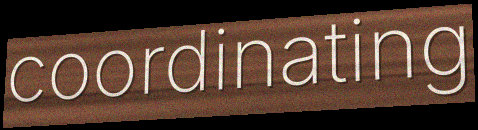
coordinating